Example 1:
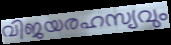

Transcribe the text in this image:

വിജയരഹസ്യവും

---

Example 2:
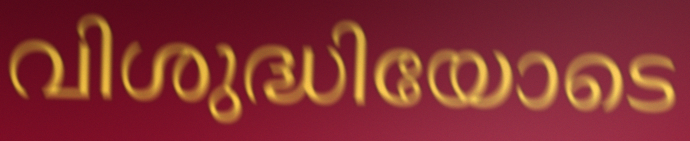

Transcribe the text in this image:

വിശുദ്ധിയോടെ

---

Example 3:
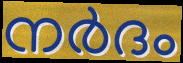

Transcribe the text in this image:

നർദം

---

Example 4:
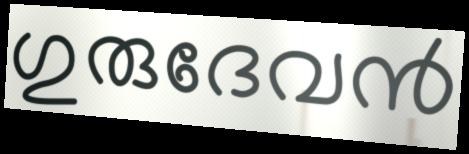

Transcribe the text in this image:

ഗുരുദേവൻ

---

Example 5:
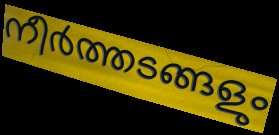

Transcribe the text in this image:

നീർത്തടങ്ങളും